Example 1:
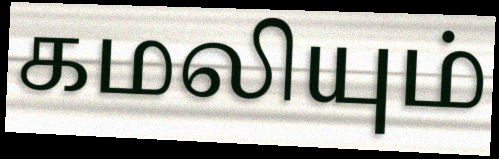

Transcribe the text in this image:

கமலியும்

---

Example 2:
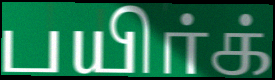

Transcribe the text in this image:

பயிர்க்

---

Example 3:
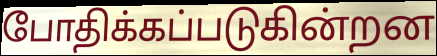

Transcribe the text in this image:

போதிக்கப்படுகின்றன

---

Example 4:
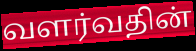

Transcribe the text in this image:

வளர்வதின்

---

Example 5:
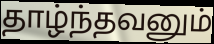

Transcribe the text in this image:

தாழ்ந்தவனும்